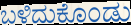
ಬಳಿದುಕೊಂಡು